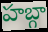
హబ్గా